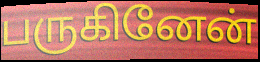
பருகினேன்